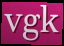
vgk